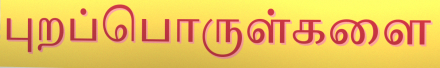
புறப்பொருள்களை